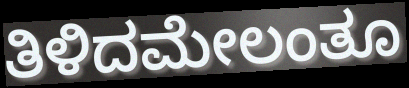
ತಿಳಿದಮೇಲಂತೂ